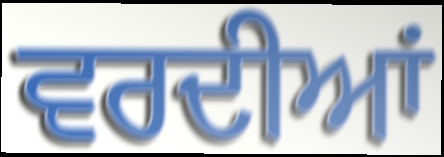
ਵਰਦੀਆਂ